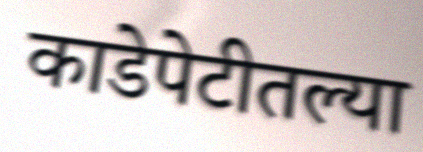
काडेपेटीतल्या